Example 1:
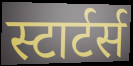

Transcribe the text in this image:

स्टार्टर्स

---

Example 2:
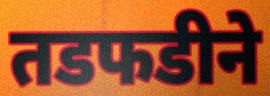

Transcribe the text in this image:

तडफडीने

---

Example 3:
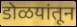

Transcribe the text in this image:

डोळयांतून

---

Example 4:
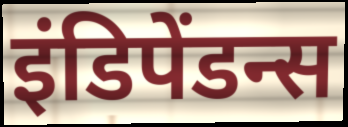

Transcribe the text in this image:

इंडिपेंडन्स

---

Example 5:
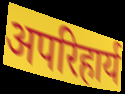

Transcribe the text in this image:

अपरिहार्य